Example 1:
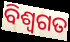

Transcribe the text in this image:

ବିଶ୍ଵଗତ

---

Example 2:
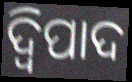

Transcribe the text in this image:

ଦ୍ୱିପାଦ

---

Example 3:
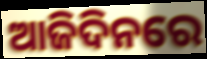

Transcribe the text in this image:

ଆଜିଦିନରେ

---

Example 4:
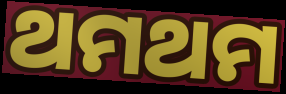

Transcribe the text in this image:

ଥମଥମ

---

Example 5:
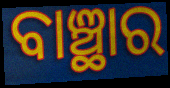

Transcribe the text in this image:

ବାଞ୍ଛାର